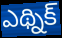
ఎథ్నిక్